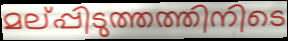
മല്പ്പിടുത്തത്തിനിടെ